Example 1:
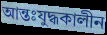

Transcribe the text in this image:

আন্তঃযুদ্ধকালীন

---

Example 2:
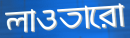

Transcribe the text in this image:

লাওতারো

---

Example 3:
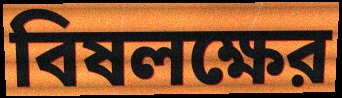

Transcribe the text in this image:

বিষলক্ষের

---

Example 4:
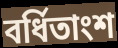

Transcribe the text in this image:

বর্ধিতাংশ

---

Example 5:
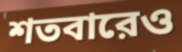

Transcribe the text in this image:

শতবারেও